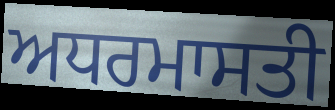
ਅਧਰਮਾਸਤੀ